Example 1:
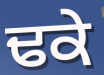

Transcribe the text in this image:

ਢਕੇ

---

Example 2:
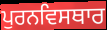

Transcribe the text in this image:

ਪੁਰਨਵਿਸਥਾਰ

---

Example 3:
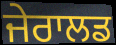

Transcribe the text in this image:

ਜੇਰਾਲਡ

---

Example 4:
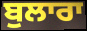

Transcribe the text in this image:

ਬੁਲਾਰਾ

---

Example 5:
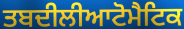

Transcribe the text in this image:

ਤਬਦੀਲੀਆਟੋਮੈਟਿਕ